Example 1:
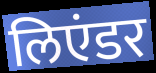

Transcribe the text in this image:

लिएंडर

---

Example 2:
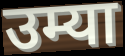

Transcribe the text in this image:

उम्या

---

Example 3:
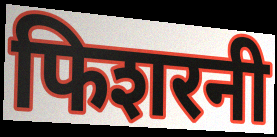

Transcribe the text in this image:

फिशरनी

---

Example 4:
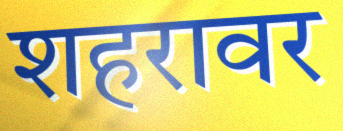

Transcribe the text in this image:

शहरावर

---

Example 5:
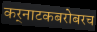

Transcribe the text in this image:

कर्नाटकबरोबरच